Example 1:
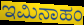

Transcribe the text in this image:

ಇಮಿನಾಹಂ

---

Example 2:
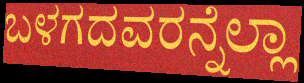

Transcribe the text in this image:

ಬಳಗದವರನ್ನೆಲ್ಲಾ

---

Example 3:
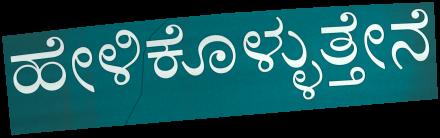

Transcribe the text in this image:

ಹೇಳಿಕೊಳ್ಳುತ್ತೇನೆ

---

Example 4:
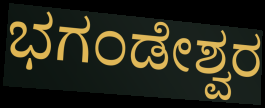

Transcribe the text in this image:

ಭಗಂಡೇಶ್ವರ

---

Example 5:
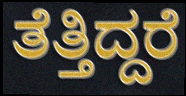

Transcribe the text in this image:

ತೆತ್ತಿದ್ದರೆ